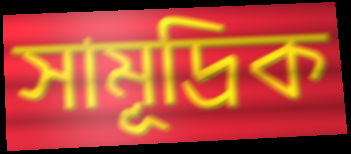
সামূদ্ৰিক